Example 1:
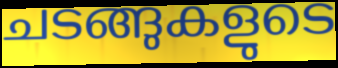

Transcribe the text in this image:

ചടങ്ങുകളുടെ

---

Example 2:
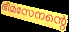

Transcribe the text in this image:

ഭീമസേനന്റെ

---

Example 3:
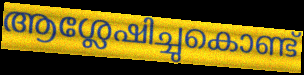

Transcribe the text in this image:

ആശ്ലേഷിച്ചുകൊണ്ട്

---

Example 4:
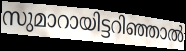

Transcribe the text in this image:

സുമാറായിട്ടറിഞ്ഞാൽ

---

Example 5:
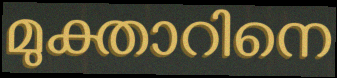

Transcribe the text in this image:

മുക്താറിനെ